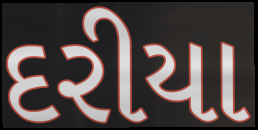
દરીયા